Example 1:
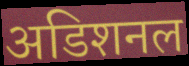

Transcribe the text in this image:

अडिशनल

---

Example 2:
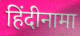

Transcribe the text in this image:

हिंदीनामा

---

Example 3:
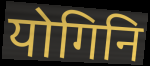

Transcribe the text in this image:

योगिनि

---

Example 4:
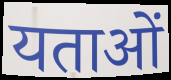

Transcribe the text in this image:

यताओं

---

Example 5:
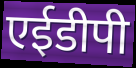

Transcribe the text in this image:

एईडीपी